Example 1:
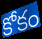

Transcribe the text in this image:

కోకం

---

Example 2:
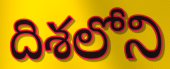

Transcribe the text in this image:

దిశలోని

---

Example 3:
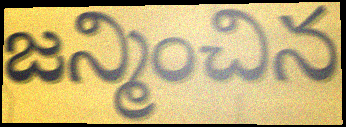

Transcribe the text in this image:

జన్మించిన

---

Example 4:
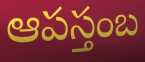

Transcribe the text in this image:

ఆపస్తంబ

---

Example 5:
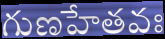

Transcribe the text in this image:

గుణహేతవః